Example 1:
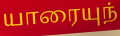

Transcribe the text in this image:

யாரையுந்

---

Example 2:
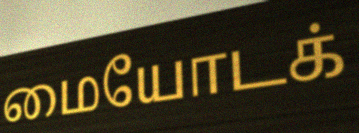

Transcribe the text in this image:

மையோடக்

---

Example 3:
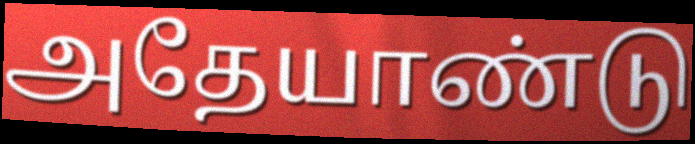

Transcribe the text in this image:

அதேயாண்டு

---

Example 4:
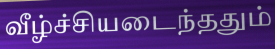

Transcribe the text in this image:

வீழ்ச்சியடைந்ததும்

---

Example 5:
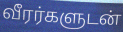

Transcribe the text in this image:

வீரர்களுடன்